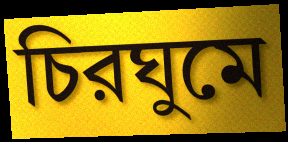
চিরঘুমে